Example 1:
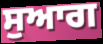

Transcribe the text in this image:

ਸੁਆਗ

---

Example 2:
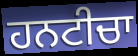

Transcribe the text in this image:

ਹਨਟੀਚਾ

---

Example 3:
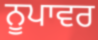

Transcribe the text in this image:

ਨੂਪਾਵਰ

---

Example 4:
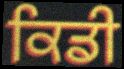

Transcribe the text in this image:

ਕਿਡੀ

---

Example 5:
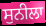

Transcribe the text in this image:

ਸੁਨੀਲਾ